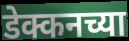
डेक्कनच्या